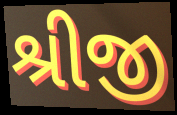
શ્રીજી